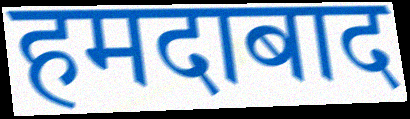
हमदाबाद